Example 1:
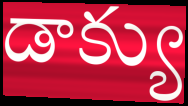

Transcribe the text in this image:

డాక్యు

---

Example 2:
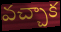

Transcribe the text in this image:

వచ్చాక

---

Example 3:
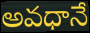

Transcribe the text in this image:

అవధానే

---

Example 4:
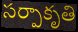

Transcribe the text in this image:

సర్పాకృతి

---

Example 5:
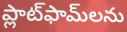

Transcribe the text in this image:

ప్లాట్‌ఫామ్‌లను